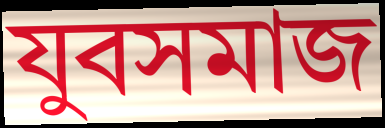
যুবসমাজ